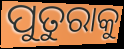
ପୁତୁରାକୁ